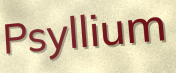
Psyllium